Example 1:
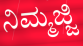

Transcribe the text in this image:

ನಿಮ್ಮಜ್ಜಿ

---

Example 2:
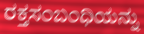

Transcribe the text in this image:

ರಕ್ತಸಂಬಂಧಿಯನ್ನು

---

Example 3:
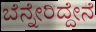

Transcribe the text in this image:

ಬೆನ್ನೇರಿದ್ದೇನೆ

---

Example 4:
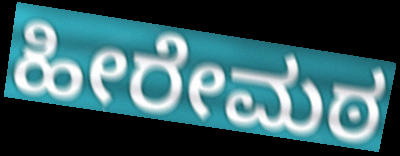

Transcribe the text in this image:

ಹೀರೇಮಠ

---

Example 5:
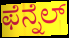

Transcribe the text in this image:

ಫೆನ್ನೆಲ್